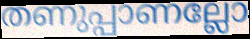
തണുപ്പാണല്ലോ